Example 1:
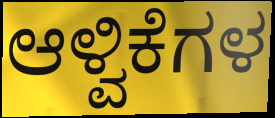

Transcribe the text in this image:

ಆಳ್ವಿಕೆಗಳ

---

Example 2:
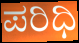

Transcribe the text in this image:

ಪರಿಧಿ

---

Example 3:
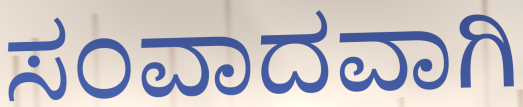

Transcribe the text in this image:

ಸಂವಾದವಾಗಿ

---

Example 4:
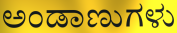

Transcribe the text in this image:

ಅಂಡಾಣುಗಳು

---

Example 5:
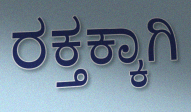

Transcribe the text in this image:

ರಕ್ತಕ್ಕಾಗಿ